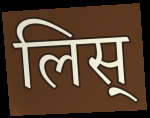
लिस्